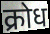
क्रोध